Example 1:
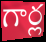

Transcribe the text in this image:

గార్ల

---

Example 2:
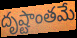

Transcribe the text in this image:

దృష్టాంతమే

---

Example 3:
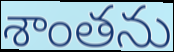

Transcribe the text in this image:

శాంతను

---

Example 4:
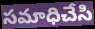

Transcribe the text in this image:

సమాధిచేసి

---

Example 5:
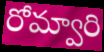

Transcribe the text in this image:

రోమ్వారి